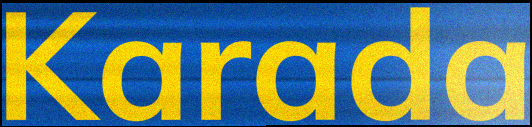
Karada